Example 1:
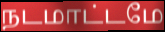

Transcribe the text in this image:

நடமாட்டமே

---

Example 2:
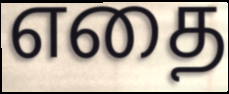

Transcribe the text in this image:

எதை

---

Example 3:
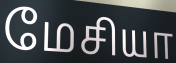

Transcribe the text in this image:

மேசியா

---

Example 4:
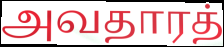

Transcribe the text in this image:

அவதாரத்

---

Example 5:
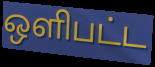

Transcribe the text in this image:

ஒளிபட்ட